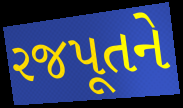
રજપૂતને